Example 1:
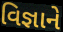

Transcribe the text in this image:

વિજ્ઞાને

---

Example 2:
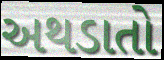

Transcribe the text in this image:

અથડાતો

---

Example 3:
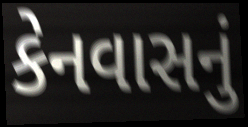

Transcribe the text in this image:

કેનવાસનું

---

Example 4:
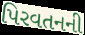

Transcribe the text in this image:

પિરવતનની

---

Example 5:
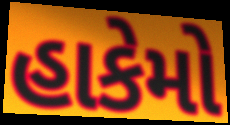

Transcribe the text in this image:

હાકેમો